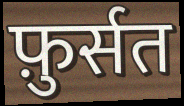
फ़ुर्सत